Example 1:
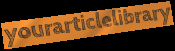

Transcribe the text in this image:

yourarticlelibrary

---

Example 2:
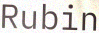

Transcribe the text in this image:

Rubin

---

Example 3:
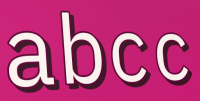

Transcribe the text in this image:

abcc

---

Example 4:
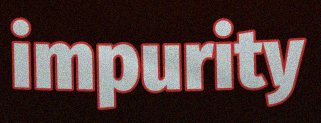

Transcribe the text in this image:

impurity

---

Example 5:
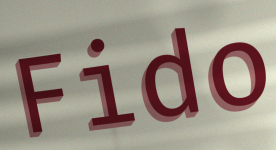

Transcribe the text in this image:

Fido